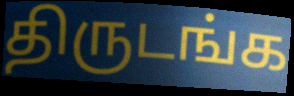
திருடங்க